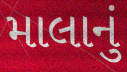
માલાનું